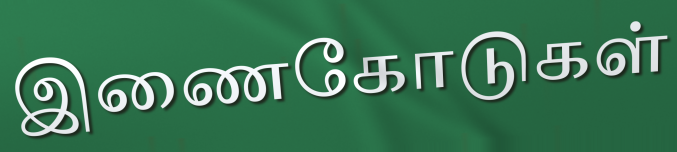
இணைகோடுகள்